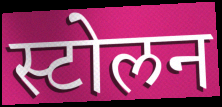
स्टोलन